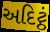
અદિટ્ઠં